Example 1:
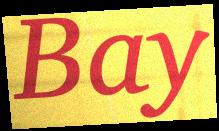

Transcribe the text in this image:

Bay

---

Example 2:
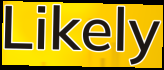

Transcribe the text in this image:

Likely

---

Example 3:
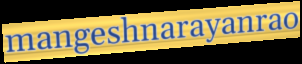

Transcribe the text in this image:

mangeshnarayanrao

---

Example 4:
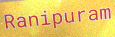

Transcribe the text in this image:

Ranipuram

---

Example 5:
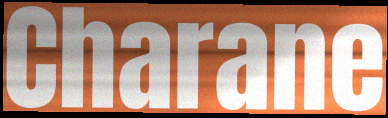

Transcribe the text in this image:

Charane